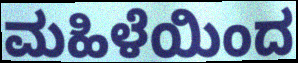
ಮಹಿಳೆಯಿಂದ